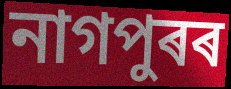
নাগপুৰৰ